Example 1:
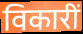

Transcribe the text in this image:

विकारीं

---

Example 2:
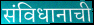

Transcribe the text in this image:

संविधानाची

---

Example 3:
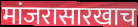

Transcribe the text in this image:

मांजरासारखाच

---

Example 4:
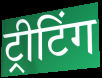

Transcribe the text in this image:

ट्रीटिंग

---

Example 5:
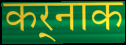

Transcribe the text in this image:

कर्नाक